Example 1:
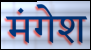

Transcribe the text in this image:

मंगेश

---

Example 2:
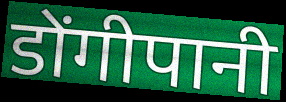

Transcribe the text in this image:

डोंगीपानी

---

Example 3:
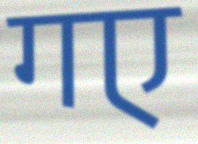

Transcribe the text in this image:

गए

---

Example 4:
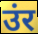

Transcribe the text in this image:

उंर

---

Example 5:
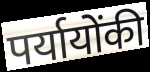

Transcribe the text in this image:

पर्यायोंकी